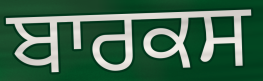
ਬਾਰਕਸ